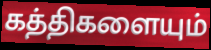
கத்திகளையும்